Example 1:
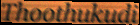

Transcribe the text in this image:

Thoothukudi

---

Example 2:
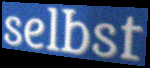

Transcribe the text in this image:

selbst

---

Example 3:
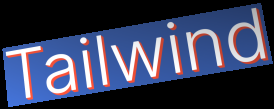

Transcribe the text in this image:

Tailwind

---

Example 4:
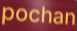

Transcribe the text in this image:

pochan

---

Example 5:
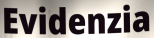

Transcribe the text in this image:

Evidenzia